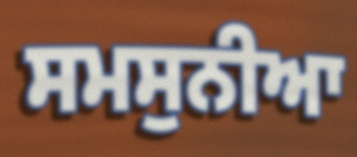
ਸਮਸੁਨੀਆ